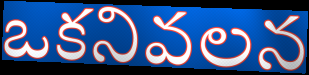
ఒకనివలన